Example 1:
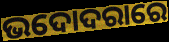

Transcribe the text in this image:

ଭଦୋଦରାରେ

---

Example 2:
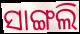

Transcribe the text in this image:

ସାଙ୍ଗଲି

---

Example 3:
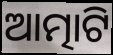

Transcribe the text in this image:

ଆତ୍ମାଟି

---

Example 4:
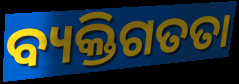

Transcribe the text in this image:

ବ୍ୟକ୍ତିଗତତା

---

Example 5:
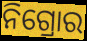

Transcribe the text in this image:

ନିଗ୍ରୋର